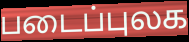
படைப்புலக